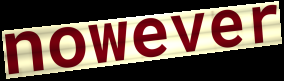
nowever